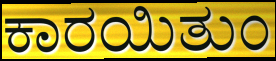
ಕಾರಯಿತುಂ